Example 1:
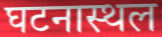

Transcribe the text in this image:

घटनास्थल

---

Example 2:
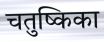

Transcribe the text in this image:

चतुष्किका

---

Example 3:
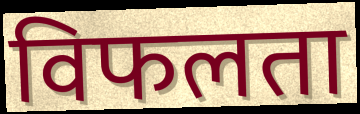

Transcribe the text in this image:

विफलता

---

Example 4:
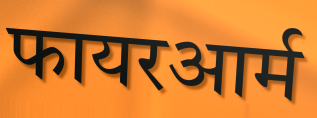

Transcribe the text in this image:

फायरआर्म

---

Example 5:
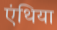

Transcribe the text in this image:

एंथिया